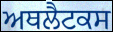
ਅਥਲੈਟਕਸ